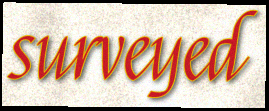
surveyed